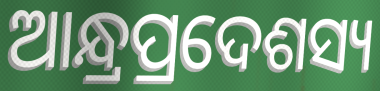
ଆନ୍ଧ୍ରପ୍ରଦେଶସ୍ୟ